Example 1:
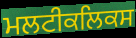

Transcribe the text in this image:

ਮਲਟੀਕਲਿਕਸ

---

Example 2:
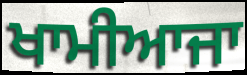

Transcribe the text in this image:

ਖਾਮੀਆਜਾ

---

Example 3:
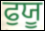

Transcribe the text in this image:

ਫੁਯੂ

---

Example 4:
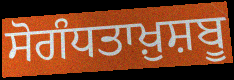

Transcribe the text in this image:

ਸੋਗੰਧਤਾਖ਼ੁਸ਼ਬੂ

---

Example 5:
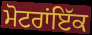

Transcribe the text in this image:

ਮੋਟਰਾਂਇੱਕ